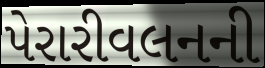
પેરારીવલનની